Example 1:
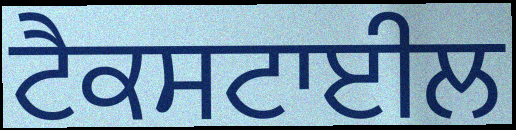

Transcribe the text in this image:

ਟੈਕਸਟਾਈਲ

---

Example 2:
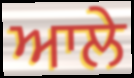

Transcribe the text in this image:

ਆਲੇ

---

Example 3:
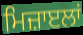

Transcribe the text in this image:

ਮਿਜ਼ਾੲਲਾਂ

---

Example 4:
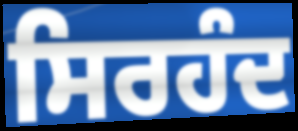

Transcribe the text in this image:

ਸਿਰਹੰਦ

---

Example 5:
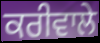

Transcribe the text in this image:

ਕਰੀਵਾਲੇ